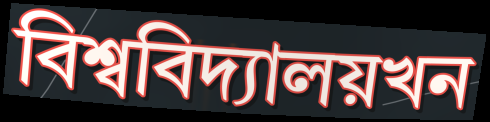
বিশ্ববিদ্যালয়খন